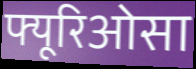
फ्यूरिओसा